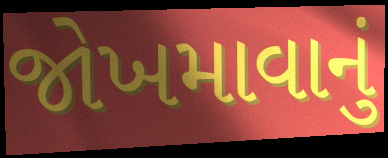
જોખમાવાનું